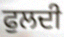
ਫੁਲਦੀ